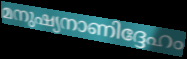
മനുഷ്യനാണിദ്ദേഹം